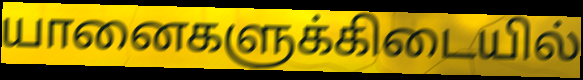
யானைகளுக்கிடையில்